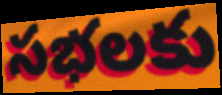
సభలకు